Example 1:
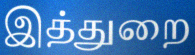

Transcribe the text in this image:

இத்துறை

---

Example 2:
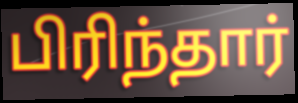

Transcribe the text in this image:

பிரிந்தார்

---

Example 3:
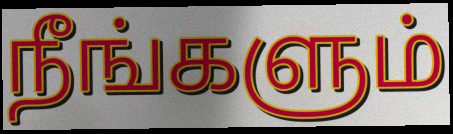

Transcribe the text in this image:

நீங்களும்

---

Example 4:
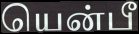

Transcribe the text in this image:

யென்பீ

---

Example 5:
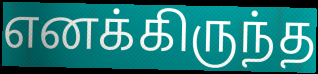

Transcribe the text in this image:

எனக்கிருந்த